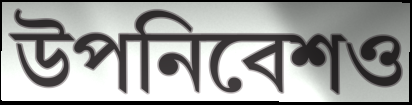
উপনিবেশও